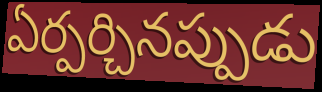
ఏర్పర్చినప్పుడు